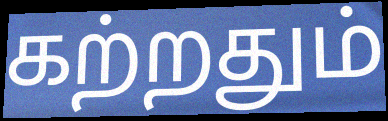
கற்றதும்